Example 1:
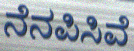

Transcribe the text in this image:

ನೆನಪಿಸಿವೆ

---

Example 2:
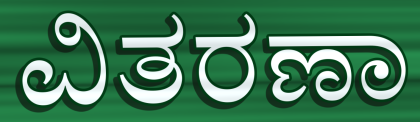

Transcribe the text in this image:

ವಿತರಣಾ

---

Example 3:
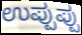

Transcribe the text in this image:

ಉಪ್ಪುಪ್ಪು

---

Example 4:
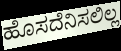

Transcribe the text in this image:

ಹೊಸದೆನಿಸಲಿಲ್ಲ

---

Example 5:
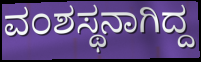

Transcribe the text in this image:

ವಂಶಸ್ಥನಾಗಿದ್ದ